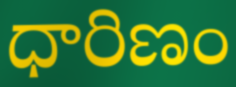
ధారిణం